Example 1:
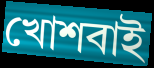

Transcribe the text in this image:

খোশবাই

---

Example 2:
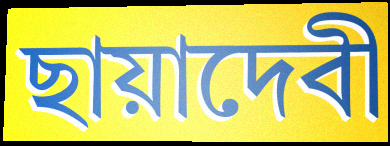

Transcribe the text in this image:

ছায়াদেবী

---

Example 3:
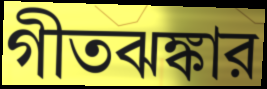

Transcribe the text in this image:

গীতঝঙ্কার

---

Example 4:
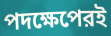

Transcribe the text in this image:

পদক্ষেপেরই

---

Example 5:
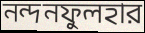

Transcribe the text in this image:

নন্দনফুলহার